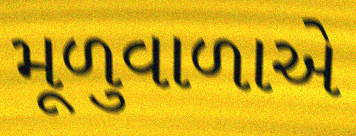
મૂળુવાળાએ